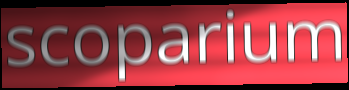
scoparium